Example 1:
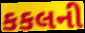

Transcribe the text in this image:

કકલની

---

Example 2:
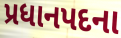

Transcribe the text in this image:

પ્રધાનપદના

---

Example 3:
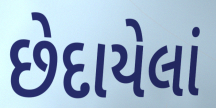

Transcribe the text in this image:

છેદાયેલાં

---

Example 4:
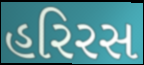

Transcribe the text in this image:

હરિરસ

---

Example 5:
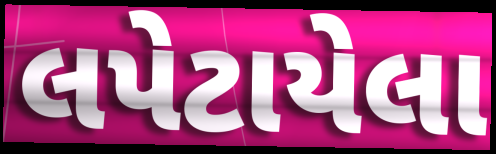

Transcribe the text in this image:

લપેટાયેલા